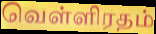
வெள்ளிரதம்